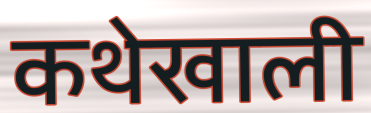
कथेखाली